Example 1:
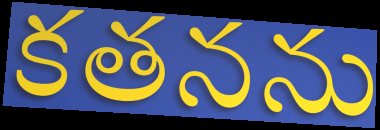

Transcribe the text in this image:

కతనను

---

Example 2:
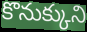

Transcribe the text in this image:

కొనుక్కుని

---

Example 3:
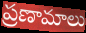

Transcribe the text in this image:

ప్రణామాలు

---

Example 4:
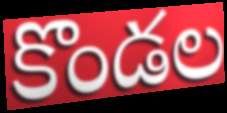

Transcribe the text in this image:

కొండల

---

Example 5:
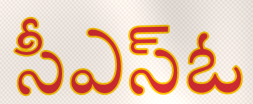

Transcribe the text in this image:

సీఎస్ఓ